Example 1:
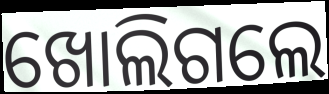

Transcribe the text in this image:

ଖୋଲିଗଲେ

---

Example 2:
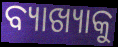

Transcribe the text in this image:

ବ୍ୟାଖ୍ୟାକୁ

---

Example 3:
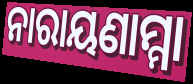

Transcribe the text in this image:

ନାରାୟଣାମ୍ମା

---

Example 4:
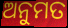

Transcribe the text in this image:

ଅନୁମତ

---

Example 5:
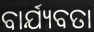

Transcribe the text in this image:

ବାର୍ଯ୍ୟବତା